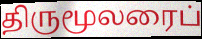
திருமூலரைப்